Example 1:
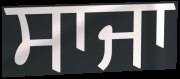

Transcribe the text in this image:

ਸਾਜਾ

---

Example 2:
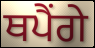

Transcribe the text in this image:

ਥਪੈਂਗੇ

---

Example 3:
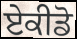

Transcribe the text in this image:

ਏਕੀਡੋ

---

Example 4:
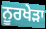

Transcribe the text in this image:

ਨੂਰਖੇੜਾ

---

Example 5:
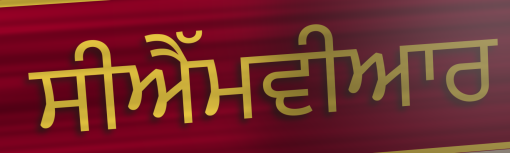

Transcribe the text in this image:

ਸੀਐੱਮਵੀਆਰ